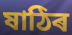
ষাঠিৰ